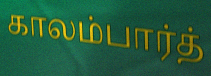
காலம்பார்த்